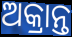
ଅକ୍ରାନ୍ତ